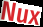
Nux